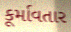
કૂર્માવતાર